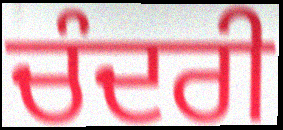
ਚੰਦਰੀ